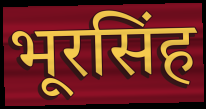
भूरसिंह